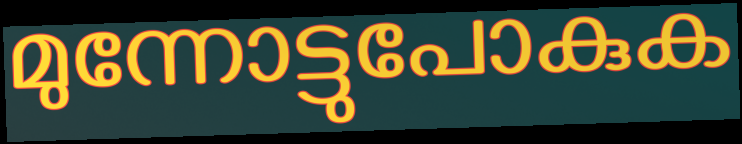
മുന്നോട്ടുപോകുക